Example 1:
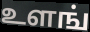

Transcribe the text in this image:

உளங்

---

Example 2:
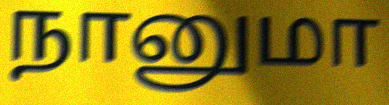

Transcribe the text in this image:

நானுமா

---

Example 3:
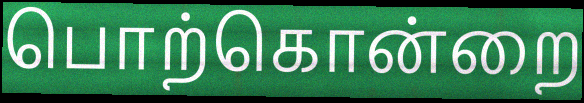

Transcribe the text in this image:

பொற்கொன்றை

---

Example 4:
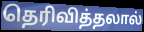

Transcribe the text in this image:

தெரிவித்தலால்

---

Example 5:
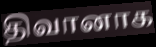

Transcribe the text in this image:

திவானாக